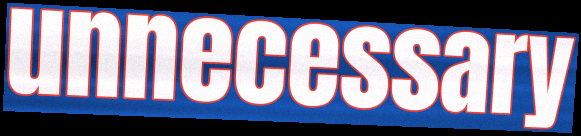
unnecessary